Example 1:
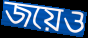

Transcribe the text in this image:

জয়েও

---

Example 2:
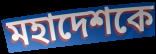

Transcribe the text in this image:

মহাদেশকে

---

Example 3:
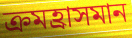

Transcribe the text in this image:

ক্রমহ্রাসমান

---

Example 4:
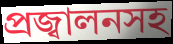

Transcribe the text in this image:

প্রজ্বালনসহ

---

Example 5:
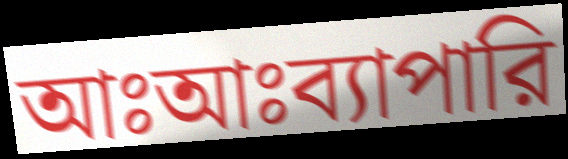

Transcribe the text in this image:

আঃআঃব্যাপারি